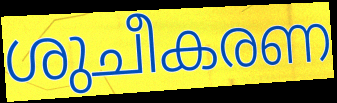
ശുചീകരണ